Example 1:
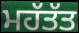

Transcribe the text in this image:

ਮਹੱਤੱਤ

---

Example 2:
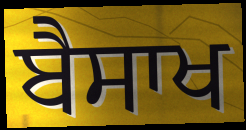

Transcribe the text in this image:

ਬੈਸਾਖ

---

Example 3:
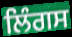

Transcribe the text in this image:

ਲਿੰਗਸ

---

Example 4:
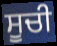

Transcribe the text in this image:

ਸੂਚੀ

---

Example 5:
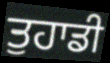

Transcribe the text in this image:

ਤੁਹਾਡੀ